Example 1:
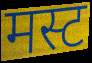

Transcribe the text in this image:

मस्ट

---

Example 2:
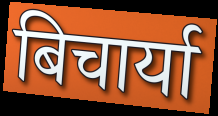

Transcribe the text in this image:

बिचार्या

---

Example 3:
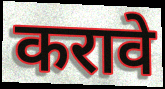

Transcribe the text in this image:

करावे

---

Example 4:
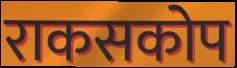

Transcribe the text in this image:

राकसकोप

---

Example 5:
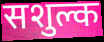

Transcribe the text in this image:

सशुल्क